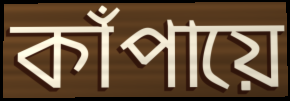
কাঁপায়ে